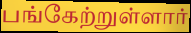
பங்கேற்றுள்ளார்